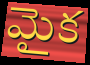
మైక